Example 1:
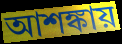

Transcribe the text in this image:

আশঙ্কায়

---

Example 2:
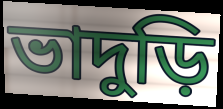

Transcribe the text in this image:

ভাদুড়ি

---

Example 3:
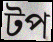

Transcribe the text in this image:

টপ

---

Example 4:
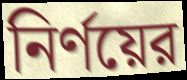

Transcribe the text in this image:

নির্ণয়ের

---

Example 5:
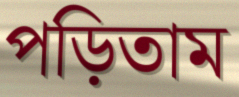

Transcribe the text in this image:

পড়িতাম